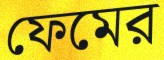
ফেমের